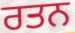
ਰਤਨ